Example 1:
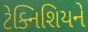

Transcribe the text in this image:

ટેક્નિશિયને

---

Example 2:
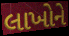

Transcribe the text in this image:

લાખોને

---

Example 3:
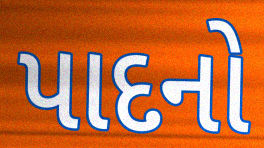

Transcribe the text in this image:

પાદનો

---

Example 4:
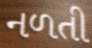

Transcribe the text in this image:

નળતી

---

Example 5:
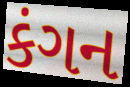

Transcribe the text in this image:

કંગન